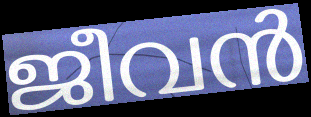
ജീവൻ